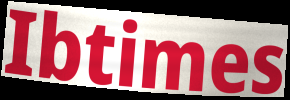
Ibtimes